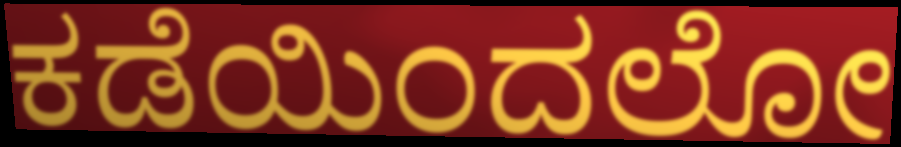
ಕಡೆಯಿಂದಲೋ